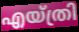
എയ്ത്രി